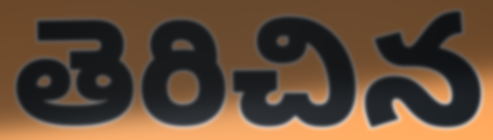
తెరిచిన